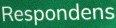
Respondens